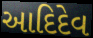
આદિદેવ